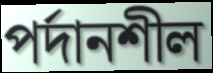
পর্দানশীল